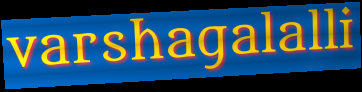
varshagalalli